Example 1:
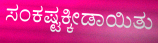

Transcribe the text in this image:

ಸಂಕಷ್ಟಕ್ಕೀಡಾಯಿತು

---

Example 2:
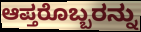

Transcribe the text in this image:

ಆಪ್ತರೊಬ್ಬರನ್ನು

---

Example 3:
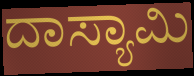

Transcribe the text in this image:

ದಾಸ್ಯಾಮಿ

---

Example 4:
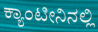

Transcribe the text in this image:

ಕ್ಯಾಂಟೀನಿನಲ್ಲಿ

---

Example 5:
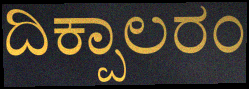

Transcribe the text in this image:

ದಿಕ್ಪಾಲರಂ